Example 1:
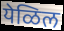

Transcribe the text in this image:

येळिल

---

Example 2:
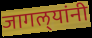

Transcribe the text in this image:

जागल्यांनी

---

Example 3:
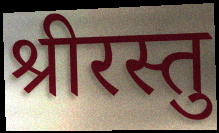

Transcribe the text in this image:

श्रीरस्तु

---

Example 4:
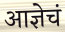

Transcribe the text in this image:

आज्ञेचं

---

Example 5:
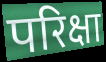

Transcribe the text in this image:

परिक्षा